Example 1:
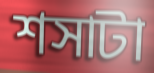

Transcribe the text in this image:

শসাটা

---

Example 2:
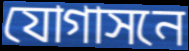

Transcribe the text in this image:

যোগাসনে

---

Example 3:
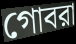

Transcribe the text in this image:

গোবরা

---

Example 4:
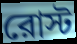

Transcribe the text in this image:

রোস্ট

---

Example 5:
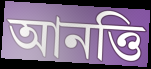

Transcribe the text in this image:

আনত্তি